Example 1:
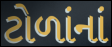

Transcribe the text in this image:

ટોળાંનાં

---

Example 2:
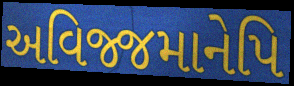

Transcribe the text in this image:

અવિજ્જમાનેપિ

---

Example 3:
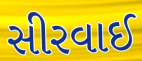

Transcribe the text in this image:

સીરવાઈ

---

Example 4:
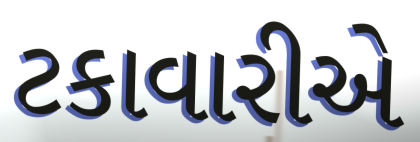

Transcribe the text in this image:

ટકાવારીએ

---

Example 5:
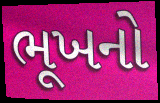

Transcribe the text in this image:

ભૂખનો